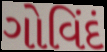
ગોવિંદં